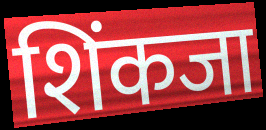
शिंकजा